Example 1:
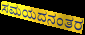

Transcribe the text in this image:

ಸಮಯದನಂತರ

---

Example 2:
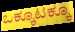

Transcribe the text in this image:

ಒಕ್ಕೂಟಕ್ಕೂ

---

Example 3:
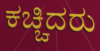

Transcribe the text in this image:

ಕಚ್ಚಿದರು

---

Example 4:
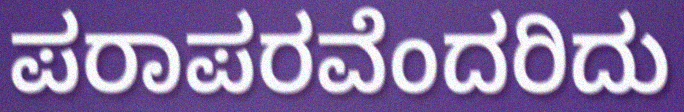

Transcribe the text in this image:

ಪರಾಪರವೆಂದರಿದು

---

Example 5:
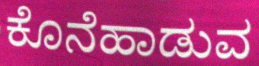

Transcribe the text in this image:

ಕೊನೆಹಾಡುವ